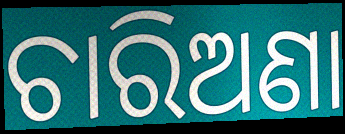
ଚାରିଅଣା